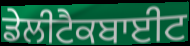
ਡੇਲੀਟੈਕਬਾਈਟ